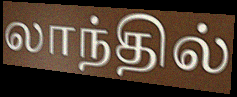
லாந்தில்